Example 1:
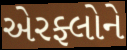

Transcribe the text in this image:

એરફ્લોને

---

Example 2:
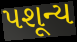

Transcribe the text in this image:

પશૂન્ય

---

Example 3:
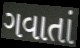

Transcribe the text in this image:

ગવાતાં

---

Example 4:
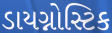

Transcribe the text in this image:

ડાયગ્નોસ્ટિક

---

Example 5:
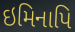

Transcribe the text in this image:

ઇમિનાપિ